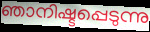
ഞാനിഷ്ടപ്പെടുന്നു